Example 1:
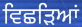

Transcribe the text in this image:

ਵਿਛੜਿਆਂ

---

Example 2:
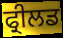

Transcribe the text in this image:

ਫ੍ਰੀਲਡ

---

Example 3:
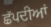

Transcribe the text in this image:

ਛੱਪਦੀਆਂ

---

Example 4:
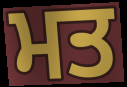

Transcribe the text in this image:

ਮਤ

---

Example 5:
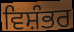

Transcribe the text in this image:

ਵਿਸ਼ੰਭਰ